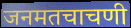
जनमतचाचणी